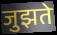
जुझते